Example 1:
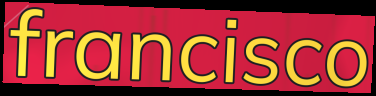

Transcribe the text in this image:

francisco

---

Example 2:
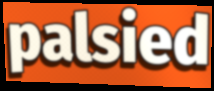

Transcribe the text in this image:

palsied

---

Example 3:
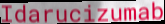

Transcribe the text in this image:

Idarucizumab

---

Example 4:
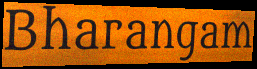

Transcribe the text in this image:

Bharangam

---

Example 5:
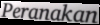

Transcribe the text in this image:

Peranakan